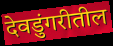
देवडुंगरीतील